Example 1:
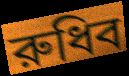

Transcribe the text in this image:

রুধিব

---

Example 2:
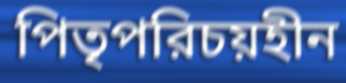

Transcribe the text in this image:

পিতৃপরিচয়হীন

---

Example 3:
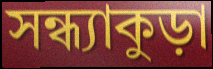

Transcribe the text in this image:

সন্ধ্যাকুড়া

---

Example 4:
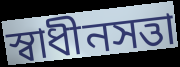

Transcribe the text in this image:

স্বাধীনসত্তা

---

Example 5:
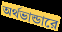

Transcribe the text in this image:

অর্থভান্ডারে